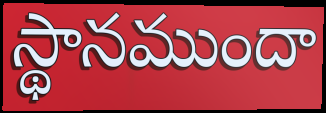
స్థానముందా